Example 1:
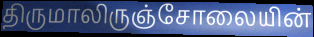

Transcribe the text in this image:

திருமாலிருஞ்சோலையின்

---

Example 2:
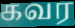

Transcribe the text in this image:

கவர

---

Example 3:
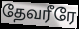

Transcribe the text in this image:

தேவரீரே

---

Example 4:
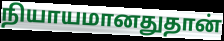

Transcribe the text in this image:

நியாயமானதுதான்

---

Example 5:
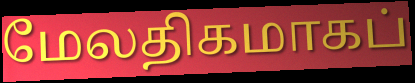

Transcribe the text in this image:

மேலதிகமாகப்